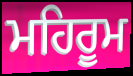
ਮਹਿਰੂਮ